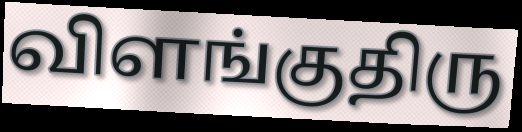
விளங்குதிரு